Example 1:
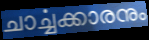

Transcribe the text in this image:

ചാൎച്ചക്കാരനും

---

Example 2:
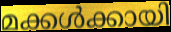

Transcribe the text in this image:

മക്കൾക്കായി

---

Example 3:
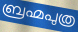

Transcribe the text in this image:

ബ്രഹ്മപുത്ര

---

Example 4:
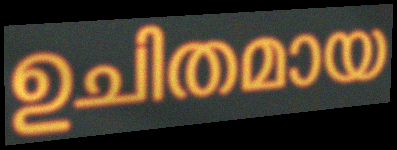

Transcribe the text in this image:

ഉചിതമായ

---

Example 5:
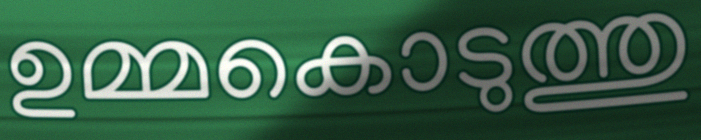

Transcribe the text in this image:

ഉമ്മകൊടുത്തു